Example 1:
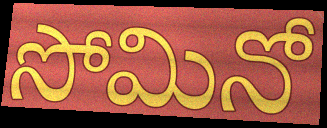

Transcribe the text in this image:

సోమినో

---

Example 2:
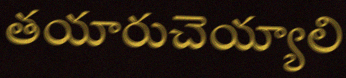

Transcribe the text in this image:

తయారుచెయ్యాలి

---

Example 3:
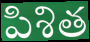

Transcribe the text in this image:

పిశిత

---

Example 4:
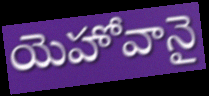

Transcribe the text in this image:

యెహోవానై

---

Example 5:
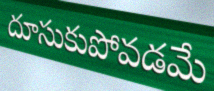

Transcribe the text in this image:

దూసుకుపోవడమే